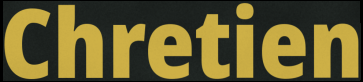
Chretien